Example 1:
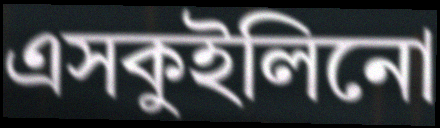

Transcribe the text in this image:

এসকুইলিনো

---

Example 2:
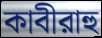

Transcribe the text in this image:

কাবীরাহু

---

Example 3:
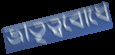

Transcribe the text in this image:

ভ্রাতৃত্ববোধে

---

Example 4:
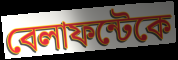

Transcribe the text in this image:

বেলাফন্টেকে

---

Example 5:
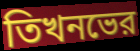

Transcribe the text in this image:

তিখনভের